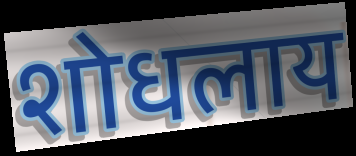
शोधलाय